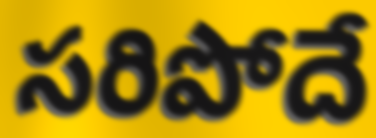
సరిపోదే